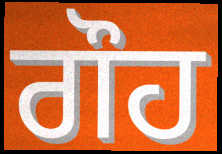
ਗੌਹ